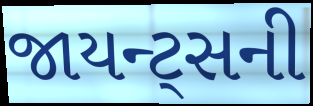
જાયન્ટ્સની